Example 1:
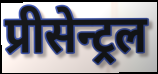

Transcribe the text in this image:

प्रीसेन्ट्रल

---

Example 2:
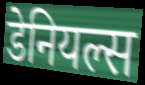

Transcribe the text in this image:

डेनियल्स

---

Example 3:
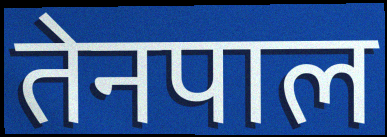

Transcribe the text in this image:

तेनपाल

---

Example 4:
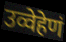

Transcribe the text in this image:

उव्वेहेणं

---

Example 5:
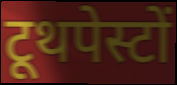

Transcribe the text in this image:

टूथपेस्टों